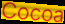
Cocoa